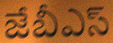
జేబీఎస్